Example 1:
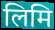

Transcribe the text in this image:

लिमि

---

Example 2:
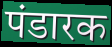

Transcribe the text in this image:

पंडारक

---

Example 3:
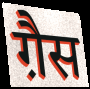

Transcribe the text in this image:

ग़ैस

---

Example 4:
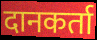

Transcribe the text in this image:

दानकर्ता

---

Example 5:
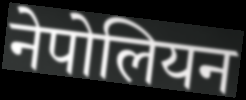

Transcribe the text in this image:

नेपोलियन